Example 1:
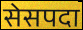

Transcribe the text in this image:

सेसपदा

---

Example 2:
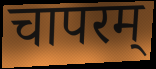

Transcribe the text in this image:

चापरम्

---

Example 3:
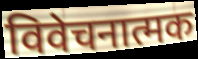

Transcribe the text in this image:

विवेचनात्‍मक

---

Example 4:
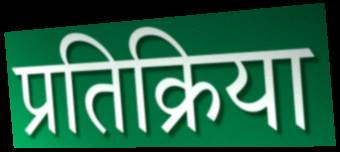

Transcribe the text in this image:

प्रतिक्रिया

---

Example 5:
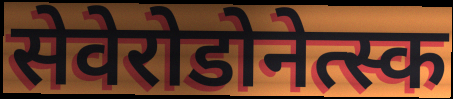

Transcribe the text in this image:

सेवेरोडोनेत्स्क